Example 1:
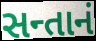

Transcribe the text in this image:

સન્તાનં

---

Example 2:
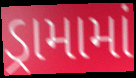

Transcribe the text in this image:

ડ્રામામાં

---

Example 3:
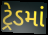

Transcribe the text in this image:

ટ્રેડમાં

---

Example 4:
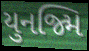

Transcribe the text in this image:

યુનજ્મિ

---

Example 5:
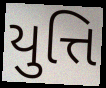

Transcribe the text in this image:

યુત્તિ